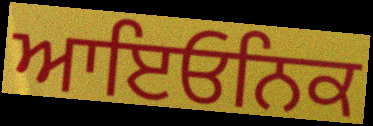
ਆਇਓਨਿਕ